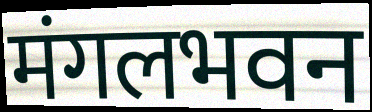
मंगलभवन